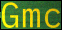
Gmc